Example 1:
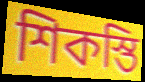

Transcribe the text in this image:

শিকস্তি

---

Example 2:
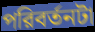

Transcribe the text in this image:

পরিবর্তনটা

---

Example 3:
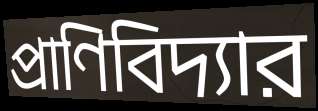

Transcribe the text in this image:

প্রাণিবিদ্যার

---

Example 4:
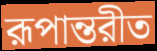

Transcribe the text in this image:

রূপান্তরীত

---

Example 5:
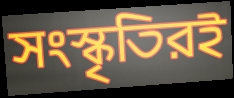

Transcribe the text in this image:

সংস্কৃতিরই